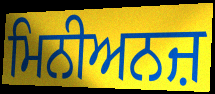
ਮਿਨੀਅਨਜ਼